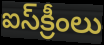
ఐస్‌క్రీంలు